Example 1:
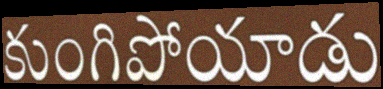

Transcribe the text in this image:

కుంగిపోయాడు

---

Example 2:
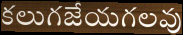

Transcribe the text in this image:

కలుగజేయగలవు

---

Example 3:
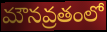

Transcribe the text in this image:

మౌనవ్రతంలో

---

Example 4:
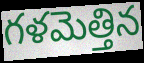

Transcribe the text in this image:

గళమెత్తిన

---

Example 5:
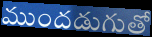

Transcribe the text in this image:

ముందడుగుతో